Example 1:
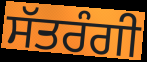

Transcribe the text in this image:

ਸੱਤਰੰਗੀ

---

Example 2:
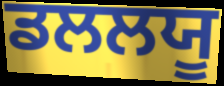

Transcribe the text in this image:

ਡਲਲਯੂ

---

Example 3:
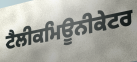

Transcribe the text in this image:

ਟੈਲੀਕਮਿਊਨੀਕੇਟਰ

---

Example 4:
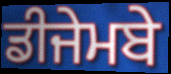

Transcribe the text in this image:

ਡੀਜੇਮਬੇ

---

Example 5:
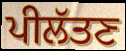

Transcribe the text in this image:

ਪੀਲੱਤਣ